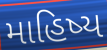
માહિષ્ય